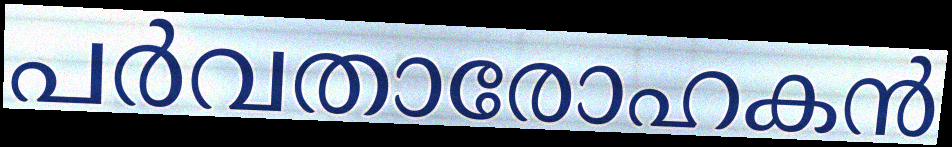
പർവതാരോഹകൻ